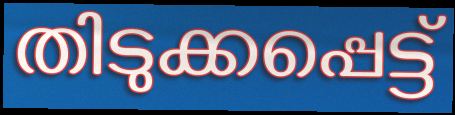
തിടുക്കപ്പെട്ട്